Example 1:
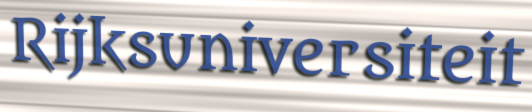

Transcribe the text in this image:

Rijksuniversiteit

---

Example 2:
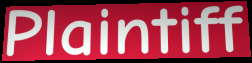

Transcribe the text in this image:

Plaintiff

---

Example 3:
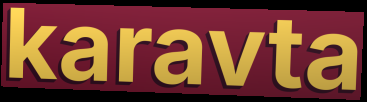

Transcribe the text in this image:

karavta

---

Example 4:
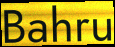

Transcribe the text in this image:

Bahru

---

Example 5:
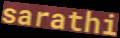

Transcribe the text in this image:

sarathi